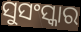
ସୁସଂସ୍କାର